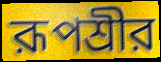
রূপশ্রীর